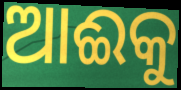
ଆଈକୁ